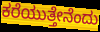
ಕರೆಯುತ್ತೇನೆಂದು